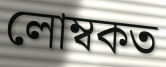
লোম্বকত